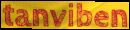
tanviben